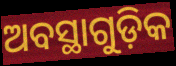
ଅବସ୍ଥାଗୁଡ଼ିକ